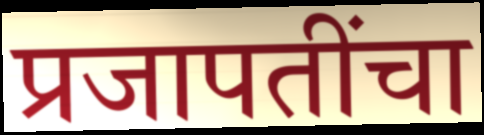
प्रजापतींचा